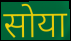
सोया